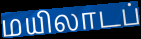
மயிலாடப்